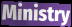
Ministry